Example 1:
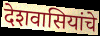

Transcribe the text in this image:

देशवासियांचे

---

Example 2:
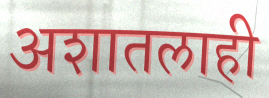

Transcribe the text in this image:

अशातलाही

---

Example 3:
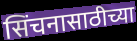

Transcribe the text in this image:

सिंचनासाठीच्या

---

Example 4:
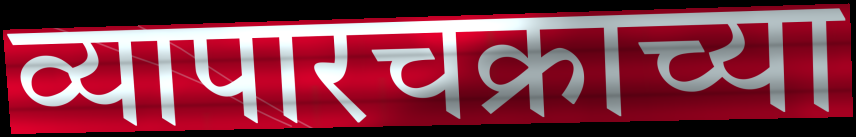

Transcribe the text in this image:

व्यापारचक्राच्या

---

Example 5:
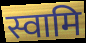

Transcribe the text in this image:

स्वामि